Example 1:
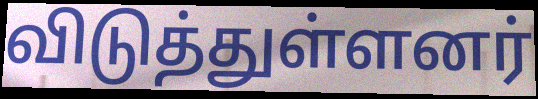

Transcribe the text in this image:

விடுத்துள்ளனர்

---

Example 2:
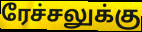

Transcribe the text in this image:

ரேச்சலுக்கு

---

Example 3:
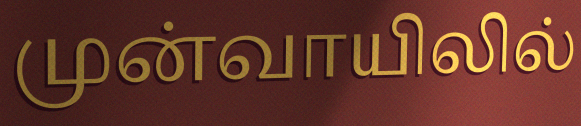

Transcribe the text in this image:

முன்வாயிலில்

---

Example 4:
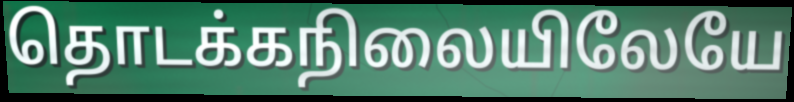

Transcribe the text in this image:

தொடக்கநிலையிலேயே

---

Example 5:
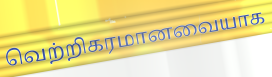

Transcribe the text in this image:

வெற்றிகரமானவையாக